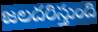
జలదరిస్తుంది